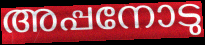
അപ്പനോടു